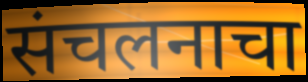
संचलनाचा